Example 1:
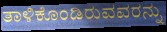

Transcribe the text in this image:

ತಾಳಿಕೊಂಡಿರುವವರನ್ನು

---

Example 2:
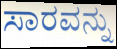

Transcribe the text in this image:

ಸಾರವನ್ನು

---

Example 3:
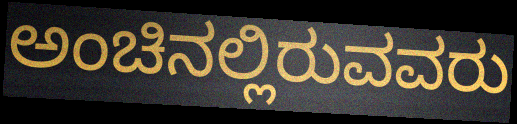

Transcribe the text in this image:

ಅಂಚಿನಲ್ಲಿರುವವರು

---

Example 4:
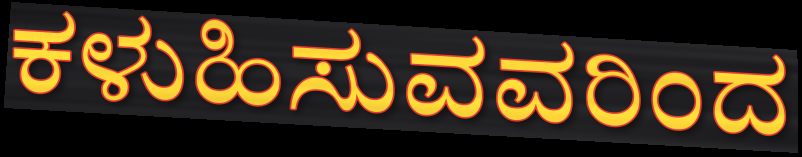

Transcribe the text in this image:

ಕಳುಹಿಸುವವರಿಂದ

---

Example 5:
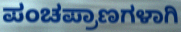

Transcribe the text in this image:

ಪಂಚಪ್ರಾಣಗಳಾಗಿ